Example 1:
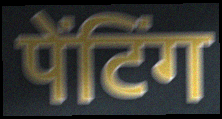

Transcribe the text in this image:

पेंटिंग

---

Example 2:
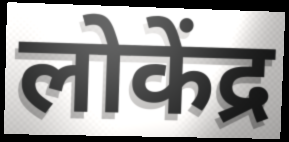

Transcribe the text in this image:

लोकेंद्र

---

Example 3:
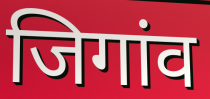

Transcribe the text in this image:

जिगांव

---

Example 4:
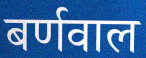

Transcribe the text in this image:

बर्णवाल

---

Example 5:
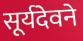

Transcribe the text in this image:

सूर्यदेवने